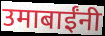
उमाबाईंनी